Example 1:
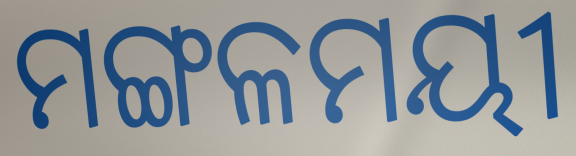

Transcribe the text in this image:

ମଙ୍ଗଳମୟୀ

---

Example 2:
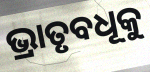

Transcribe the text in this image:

ଭ୍ରାତୃବଧୂକୁ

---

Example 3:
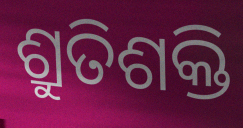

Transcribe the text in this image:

ଶ୍ରୁତିଶକ୍ତି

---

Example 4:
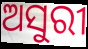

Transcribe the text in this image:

ଅସୁରୀ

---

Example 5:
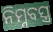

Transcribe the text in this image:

ନିମ୍ନବସ୍ତ୍ର